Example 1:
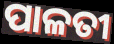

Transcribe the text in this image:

ପାଳତୀ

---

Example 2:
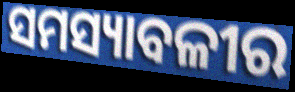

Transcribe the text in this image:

ସମସ୍ୟାବଳୀର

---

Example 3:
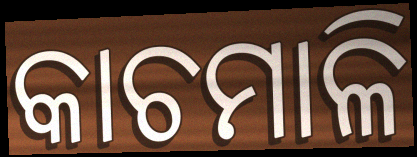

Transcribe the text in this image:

କାଚମାଳି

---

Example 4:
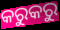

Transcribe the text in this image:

କରୁକରୁ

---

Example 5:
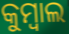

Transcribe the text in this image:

କୁମ୍ବାଲ